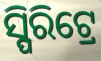
ସ୍ପିରିଟ୍ରେ